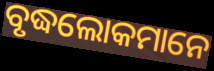
ବୃଦ୍ଧଲୋକମାନେ